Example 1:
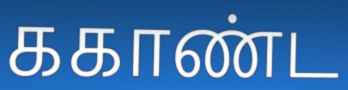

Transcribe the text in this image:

ககாண்ட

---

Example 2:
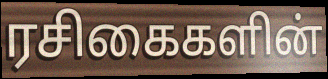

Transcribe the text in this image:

ரசிகைகளின்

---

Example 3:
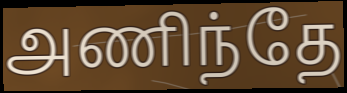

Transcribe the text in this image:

அணிந்தே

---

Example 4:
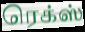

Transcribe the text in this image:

ரெக்ஸ்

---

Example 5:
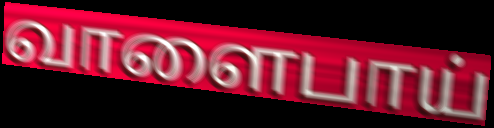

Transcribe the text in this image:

வாளைபாய்